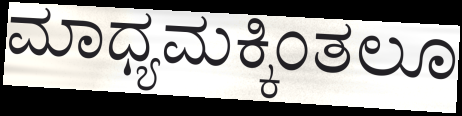
ಮಾಧ್ಯಮಕ್ಕಿಂತಲೂ